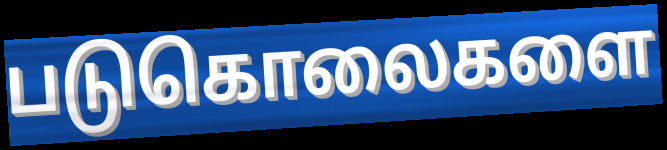
படுகொலைகளை